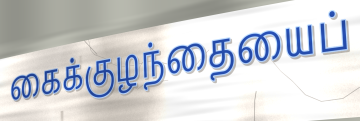
கைக்குழந்தையைப்